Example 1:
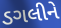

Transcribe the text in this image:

ડગલીને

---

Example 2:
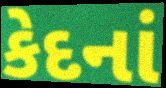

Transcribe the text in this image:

કેદનાં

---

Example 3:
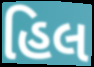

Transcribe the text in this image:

હિલ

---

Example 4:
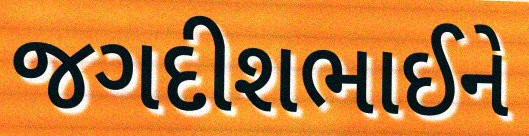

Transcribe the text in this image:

જગદીશભાઈને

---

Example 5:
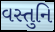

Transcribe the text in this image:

વસ્તુનિ